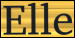
Elle